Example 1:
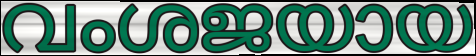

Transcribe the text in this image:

വംശജയായ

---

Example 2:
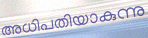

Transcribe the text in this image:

അധിപതിയാകുന്നു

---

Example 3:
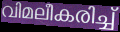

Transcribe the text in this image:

വിമലീകരിച്ച്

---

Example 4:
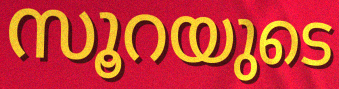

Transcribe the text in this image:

സൂറയുടെ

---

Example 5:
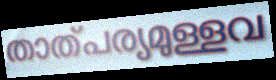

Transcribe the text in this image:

താത്പര്യമുള്ളവ